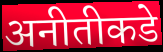
अनीतीकडे